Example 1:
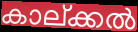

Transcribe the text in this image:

കാല്ക്കൽ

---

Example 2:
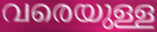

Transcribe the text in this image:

വരെയുള്ള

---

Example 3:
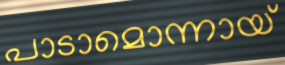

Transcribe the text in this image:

പാടാമൊന്നായ്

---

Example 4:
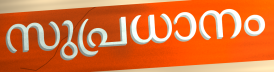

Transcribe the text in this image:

സുപ്രധാനം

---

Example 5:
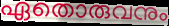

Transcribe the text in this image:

ഏതൊരുവനും